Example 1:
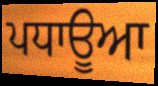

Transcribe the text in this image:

ਪਧਾਊਆ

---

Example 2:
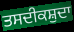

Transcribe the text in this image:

ਤਸਦੀਕਸ਼ੁਦਾ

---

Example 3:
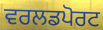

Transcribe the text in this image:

ਵਰਲਡਪੋਰਟ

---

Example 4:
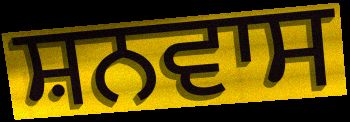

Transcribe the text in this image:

ਸ਼ਨਵਾਸ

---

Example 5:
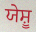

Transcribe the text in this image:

ਯੇਸ਼ੂ